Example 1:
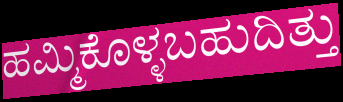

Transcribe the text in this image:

ಹಮ್ಮಿಕೊಳ್ಳಬಹುದಿತ್ತು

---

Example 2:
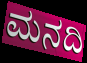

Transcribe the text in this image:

ಮನದಿ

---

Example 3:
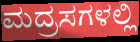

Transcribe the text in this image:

ಮದ್ರಸಗಳಲ್ಲಿ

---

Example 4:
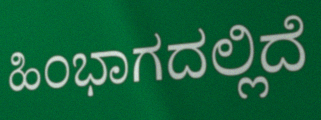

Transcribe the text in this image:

ಹಿಂಭಾಗದಲ್ಲಿದೆ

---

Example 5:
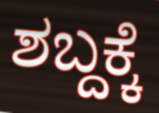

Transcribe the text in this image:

ಶಬ್ದಕ್ಕೆ